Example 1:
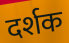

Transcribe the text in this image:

दर्शक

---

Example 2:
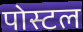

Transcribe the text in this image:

पोस्टल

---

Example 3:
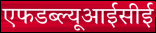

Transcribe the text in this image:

एफडब्ल्यूआईसीई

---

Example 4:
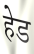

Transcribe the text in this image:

हेड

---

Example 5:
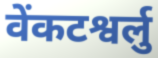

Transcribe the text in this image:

वेंकटश्वर्लु